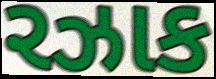
રઝાક